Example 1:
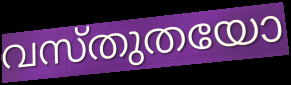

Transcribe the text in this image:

വസ്തുതയോ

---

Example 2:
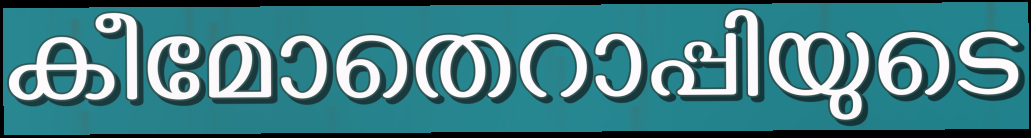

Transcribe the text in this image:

കീമോതെറാപ്പിയുടെ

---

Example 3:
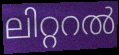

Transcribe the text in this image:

ലിറ്ററൽ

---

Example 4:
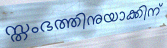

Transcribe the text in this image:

സ്തംഭത്തിനുയാക്കിന്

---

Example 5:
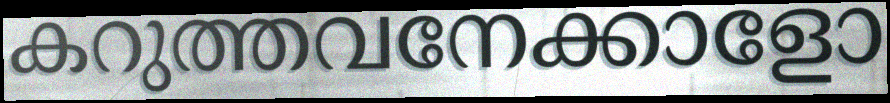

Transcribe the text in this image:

കറുത്തവനേക്കാളോ